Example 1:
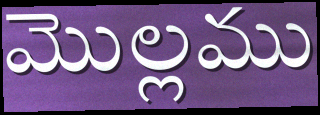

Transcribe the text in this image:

మొల్లము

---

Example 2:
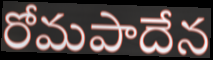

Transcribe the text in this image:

రోమపాదేన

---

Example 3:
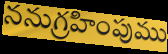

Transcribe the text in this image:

ననుగ్రహింపుము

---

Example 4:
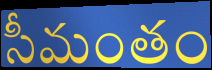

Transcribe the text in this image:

సీమంతం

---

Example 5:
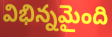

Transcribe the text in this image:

విభిన్నమైంది